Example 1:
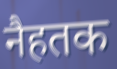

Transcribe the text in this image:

नैहतक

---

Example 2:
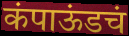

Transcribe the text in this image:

कंपाऊंडचं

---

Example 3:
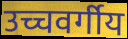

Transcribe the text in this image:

उच्चवर्गीय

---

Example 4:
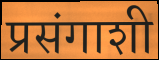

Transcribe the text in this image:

प्रसंगाशी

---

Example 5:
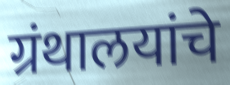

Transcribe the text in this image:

ग्रंथालयांचे